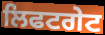
ਲਿਫਟਗੇਟ